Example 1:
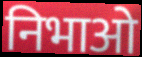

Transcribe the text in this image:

निभाओ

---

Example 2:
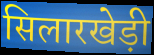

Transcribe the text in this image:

सिलारखेड़ी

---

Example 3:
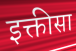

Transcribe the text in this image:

इक्तीसा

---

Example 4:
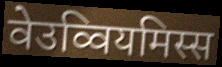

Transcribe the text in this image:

वेउव्वियमिस्स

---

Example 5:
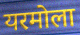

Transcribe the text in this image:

यरमोला